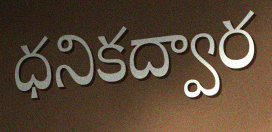
ధనికద్వార